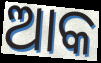
ଆକ